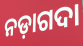
ନଡ଼ାଗଦା